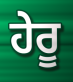
ਹੇਰੂ